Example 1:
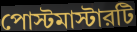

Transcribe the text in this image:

পোস্টমাস্টারটি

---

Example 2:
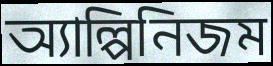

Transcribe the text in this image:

অ্যাল্পিনিজম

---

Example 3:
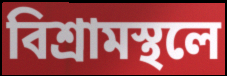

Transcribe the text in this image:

বিশ্রামস্থলে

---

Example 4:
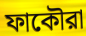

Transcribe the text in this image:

ফাকৌরা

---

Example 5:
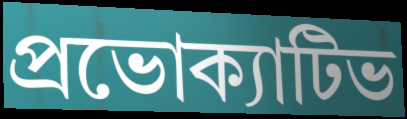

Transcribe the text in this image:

প্রভোক্যাটিভ